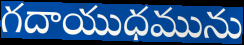
గదాయుధమును